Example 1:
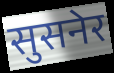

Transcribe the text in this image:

सुसनेर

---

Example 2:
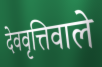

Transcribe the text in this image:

देववृत्तिवाले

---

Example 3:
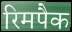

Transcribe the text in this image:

रिमपैक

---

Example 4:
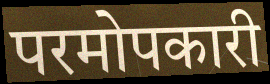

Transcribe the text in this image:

परमोपकारी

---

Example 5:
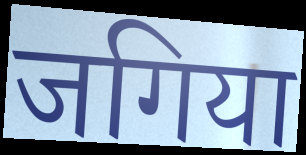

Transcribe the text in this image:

जगिया